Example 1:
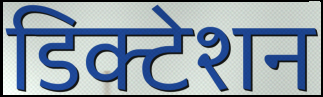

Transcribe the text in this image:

डिक्टेशन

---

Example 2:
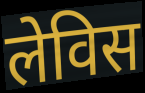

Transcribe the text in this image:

लेविस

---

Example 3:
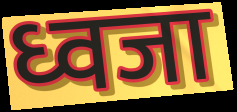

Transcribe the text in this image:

ध्वजा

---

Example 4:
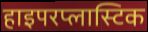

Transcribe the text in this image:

हाइपरप्लास्टिक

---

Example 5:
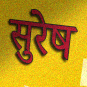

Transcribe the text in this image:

सुरेष